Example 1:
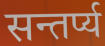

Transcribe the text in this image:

सन्तर्प्य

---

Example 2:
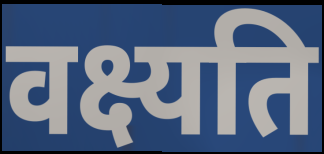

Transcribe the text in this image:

वक्ष्यति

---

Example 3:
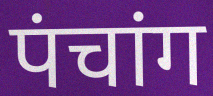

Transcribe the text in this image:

पंचांग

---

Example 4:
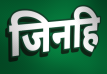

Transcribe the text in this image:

जिनहि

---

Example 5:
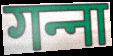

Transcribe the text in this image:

गन्‍ना